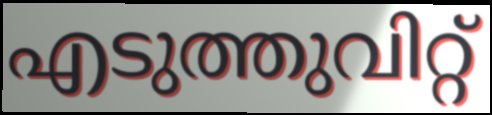
എടുത്തുവിറ്റ്